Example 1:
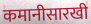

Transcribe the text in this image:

कमानीसारखी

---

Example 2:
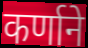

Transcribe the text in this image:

कर्णाने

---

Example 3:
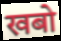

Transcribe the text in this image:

खबो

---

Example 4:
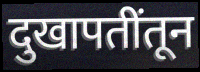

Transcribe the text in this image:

दुखापतींतून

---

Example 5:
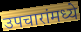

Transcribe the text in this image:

उपचारांमध्ये